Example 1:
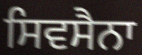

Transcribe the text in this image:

ਸਿਵਸੈਨਾ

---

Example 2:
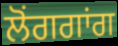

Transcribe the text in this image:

ਲੋਂਗਗਾਂਗ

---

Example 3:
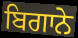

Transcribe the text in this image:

ਬਿਗਾਨੇ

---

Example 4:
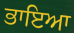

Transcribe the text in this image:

ਭਾਇਆ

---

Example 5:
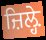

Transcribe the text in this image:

ਜ਼ਿਲ਼੍ਹੇ